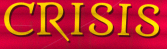
CRISIS